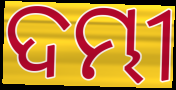
ଦମ୍ଭୀ